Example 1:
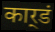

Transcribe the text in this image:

कार्डं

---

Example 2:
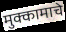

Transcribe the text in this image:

मुक्कामाचे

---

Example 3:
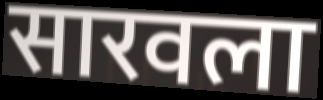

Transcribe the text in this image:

सारवला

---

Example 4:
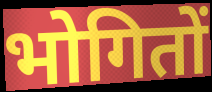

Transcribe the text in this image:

भोगितों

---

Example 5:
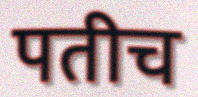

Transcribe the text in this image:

पतीच